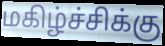
மகிழ்ச்சிக்கு